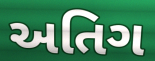
અતિગ